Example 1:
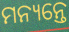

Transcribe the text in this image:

ମନ୍ୟନ୍ତେ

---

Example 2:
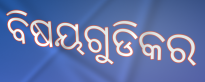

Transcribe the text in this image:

ବିଷୟଗୁଡିକର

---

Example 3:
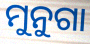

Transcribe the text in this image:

ମୁନୁଗା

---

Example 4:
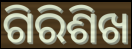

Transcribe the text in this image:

ଗିରିଶିଖ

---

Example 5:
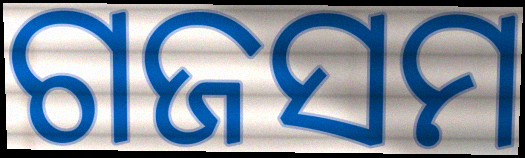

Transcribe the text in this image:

ଗଜସମ